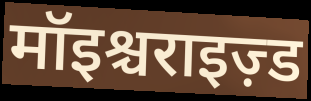
मॉइश्चराइज़्ड